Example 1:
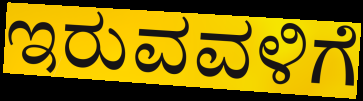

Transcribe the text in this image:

ಇರುವವಳಿಗೆ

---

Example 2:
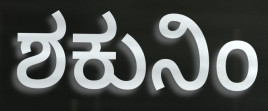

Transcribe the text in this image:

ಶಕುನಿಂ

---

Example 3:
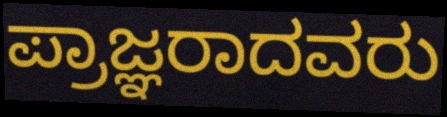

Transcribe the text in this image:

ಪ್ರಾಜ್ಞರಾದವರು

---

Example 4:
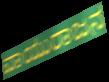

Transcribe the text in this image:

ವಾಯುರಾಜನ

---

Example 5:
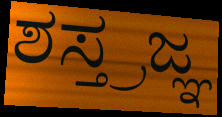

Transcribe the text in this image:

ಶಸ್ತ್ರಜ್ಞ